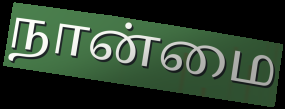
நான்மை